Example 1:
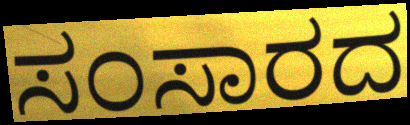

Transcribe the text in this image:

ಸಂಸಾರದ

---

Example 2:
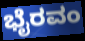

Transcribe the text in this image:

ಭೈರವಂ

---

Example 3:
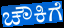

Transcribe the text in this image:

ಚೌಕಿಗೆ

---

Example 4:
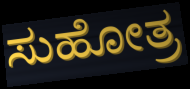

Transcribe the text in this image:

ಸುಹೋತ್ರ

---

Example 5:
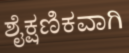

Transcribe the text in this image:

ಶೈಕ್ಷಣಿಕವಾಗಿ